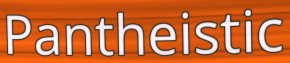
Pantheistic